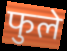
फुले